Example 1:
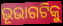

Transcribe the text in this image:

ଭୂଭାଗଟିକୁ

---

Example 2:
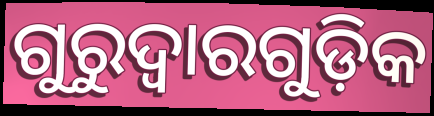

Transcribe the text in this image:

ଗୁରୁଦ୍ବାରଗୁଡ଼ିକ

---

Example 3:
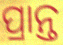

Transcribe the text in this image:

ପ୍ରାନ୍ତ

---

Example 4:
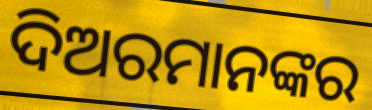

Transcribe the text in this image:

ଦିଅରମାନଙ୍କର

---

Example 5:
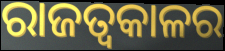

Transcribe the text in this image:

ରାଜତ୍ୱକାଳର